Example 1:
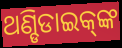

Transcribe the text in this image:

ଥଣ୍ଡିଡାଇକ୍‌ଙ୍କ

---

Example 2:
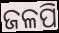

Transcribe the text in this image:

ଜଳପି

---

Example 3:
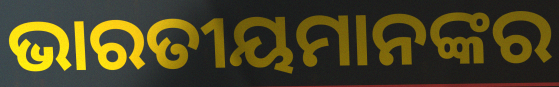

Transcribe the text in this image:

ଭାରତୀୟମାନଙ୍କର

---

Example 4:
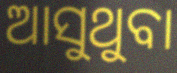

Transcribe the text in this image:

ଆସୁଥୁବା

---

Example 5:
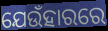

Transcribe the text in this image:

ଯେଉଁହାରରେ